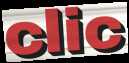
clic